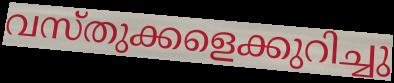
വസ്തുക്കളെക്കുറിച്ചു